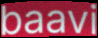
baavi